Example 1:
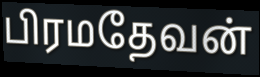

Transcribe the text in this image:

பிரமதேவன்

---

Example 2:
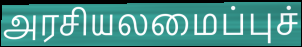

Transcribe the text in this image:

அரசியலமைப்புச்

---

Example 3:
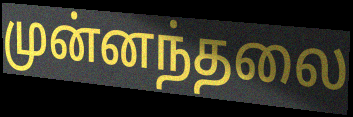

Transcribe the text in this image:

முன்னந்தலை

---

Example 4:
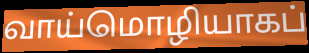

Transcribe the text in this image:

வாய்மொழியாகப்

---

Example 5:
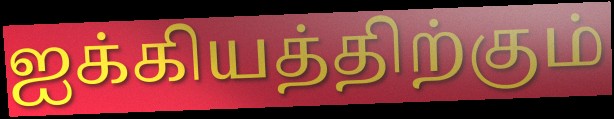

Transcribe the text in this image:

ஐக்கியத்திற்கும்